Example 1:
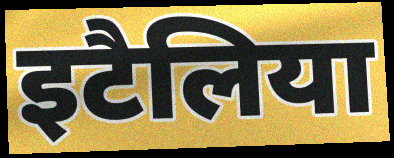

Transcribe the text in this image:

इटैलिया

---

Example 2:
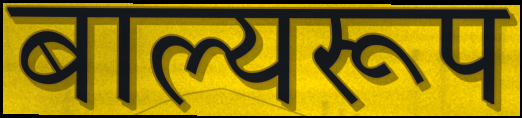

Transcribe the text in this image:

बाल्यरूप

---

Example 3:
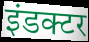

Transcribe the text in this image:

इंडक्टर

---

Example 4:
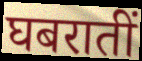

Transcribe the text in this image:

घबरातीं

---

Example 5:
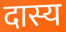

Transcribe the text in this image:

दास्य